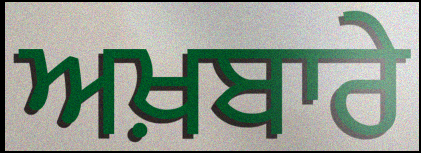
ਅਖ਼ਬਾਰੇ